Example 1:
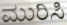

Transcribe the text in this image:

ಮುರಿಸಿ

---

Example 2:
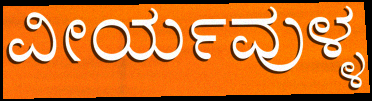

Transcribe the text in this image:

ವೀರ್ಯವುಳ್ಳ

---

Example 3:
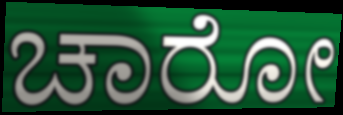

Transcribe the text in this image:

ಚಾರೋ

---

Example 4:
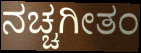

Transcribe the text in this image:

ನಚ್ಚಗೀತಂ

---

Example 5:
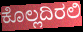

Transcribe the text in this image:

ಕೊಲ್ಲದಿರಲಿ